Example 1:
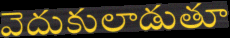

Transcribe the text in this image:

వెదుకులాడుతూ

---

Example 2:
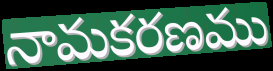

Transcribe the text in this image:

నామకరణము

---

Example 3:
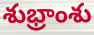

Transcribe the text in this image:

శుభ్రాంశు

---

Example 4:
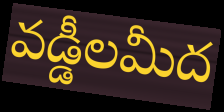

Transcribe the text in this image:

వడ్డీలమీద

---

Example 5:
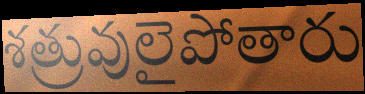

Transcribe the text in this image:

శత్రువులైపోతారు